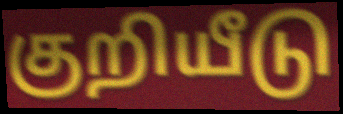
குறியீடு